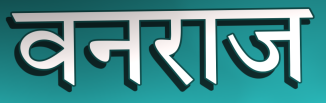
वनराज